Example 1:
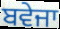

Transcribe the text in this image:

ਬਵੇਜਾ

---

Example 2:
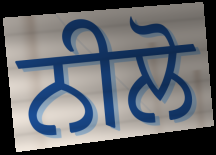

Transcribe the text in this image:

ਨੀਲੋ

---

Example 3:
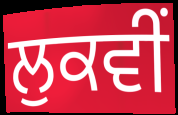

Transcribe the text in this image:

ਲੁਕਵੀਂ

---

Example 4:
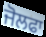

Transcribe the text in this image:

ਜੋਲਫਾ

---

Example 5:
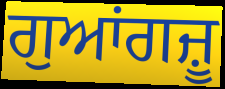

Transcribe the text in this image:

ਗੁਆਂਗਜ਼ੂ